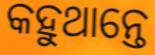
କହୁଥାନ୍ତେ